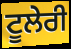
ਟੂਲੇਰੀ